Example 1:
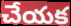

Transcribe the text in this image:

చేయక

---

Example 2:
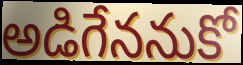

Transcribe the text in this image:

అడిగేననుకో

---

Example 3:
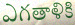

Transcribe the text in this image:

ఎగతాళికి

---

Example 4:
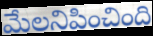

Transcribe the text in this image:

మేలనిపించింది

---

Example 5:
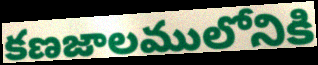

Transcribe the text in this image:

కణజాలములోనికి